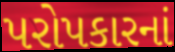
પરોપકારનાં